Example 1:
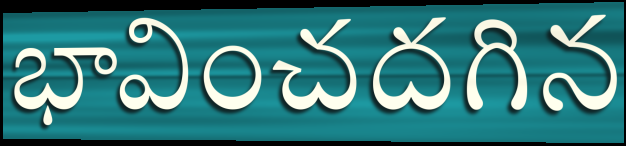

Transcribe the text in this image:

భావించదగిన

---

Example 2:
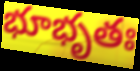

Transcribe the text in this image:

భూభృతః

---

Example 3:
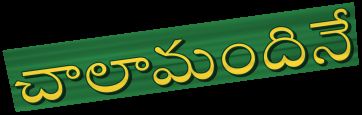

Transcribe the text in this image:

చాలామందినే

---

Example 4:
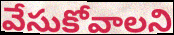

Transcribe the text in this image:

వేసుకోవాలని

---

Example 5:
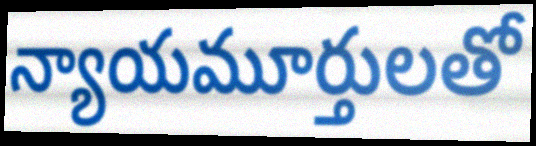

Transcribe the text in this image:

న్యాయమూర్తులతో